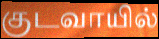
குடவாயில்